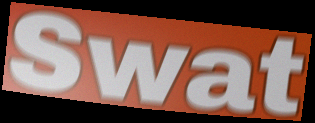
Swat